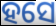
ହସେ